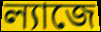
ল্যাজে